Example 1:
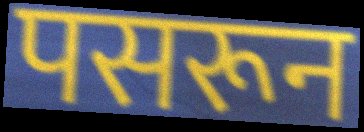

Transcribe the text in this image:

पसरून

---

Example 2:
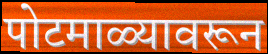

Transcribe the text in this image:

पोटमाळ्यावरून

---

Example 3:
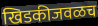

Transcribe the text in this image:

खिडकीजवळच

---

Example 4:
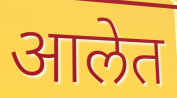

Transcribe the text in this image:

आलेत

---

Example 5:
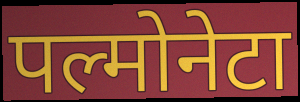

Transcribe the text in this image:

पल्मोनेटा